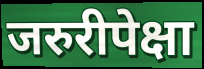
जरुरीपेक्षा